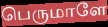
பெருமாளே